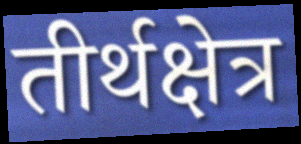
तीर्थक्षेत्र